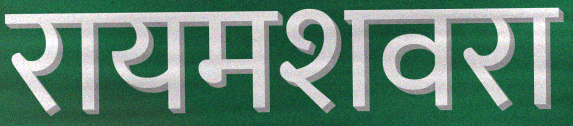
रायमशवरा